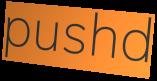
pushd